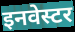
इनवेस्टर